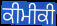
ਕੀਮੀਕੀ